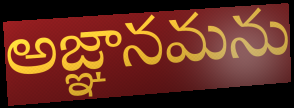
అజ్ఞానమను